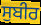
ਸੁਬੀਰ